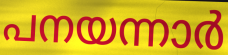
പനയന്നാർ